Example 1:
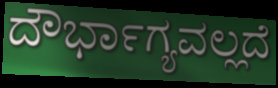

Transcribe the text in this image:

ದೌರ್ಭಾಗ್ಯವಲ್ಲದೆ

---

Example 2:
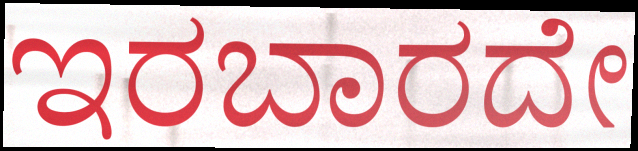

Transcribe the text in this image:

ಇರಬಾರದೇ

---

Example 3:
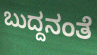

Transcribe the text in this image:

ಬುದ್ದನಂತೆ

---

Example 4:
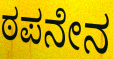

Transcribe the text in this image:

ಠಪನೇನ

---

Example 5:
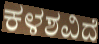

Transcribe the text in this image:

ಕಳಶವಿದೆ